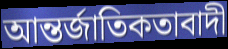
আন্তর্জাতিকতাবাদী